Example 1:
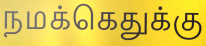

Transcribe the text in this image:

நமக்கெதுக்கு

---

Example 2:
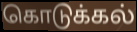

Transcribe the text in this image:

கொடுக்கல்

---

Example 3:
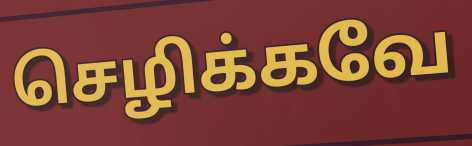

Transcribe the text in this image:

செழிக்கவே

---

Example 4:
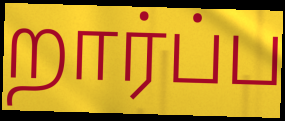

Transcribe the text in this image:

றார்ப்ப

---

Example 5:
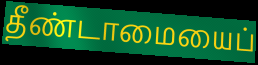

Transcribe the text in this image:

தீண்டாமையைப்